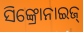
ସିଙ୍କ୍ରୋନାଇଜ୍